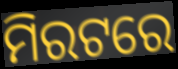
ମିରଟରେ